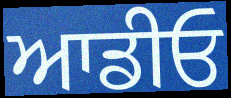
ਆਡੀਓ